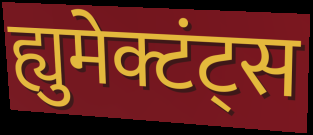
ह्युमेक्टंट्स